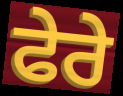
ਫੇਰੇ